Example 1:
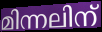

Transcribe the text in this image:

മിന്നലിന്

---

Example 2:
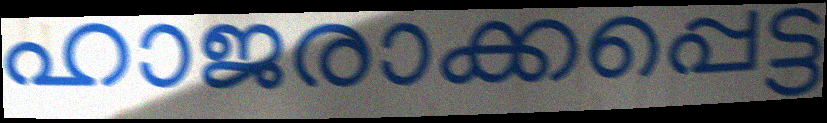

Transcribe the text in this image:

ഹാജരാക്കപ്പെട്ട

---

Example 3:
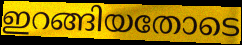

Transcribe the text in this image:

ഇറങ്ങിയതോടെ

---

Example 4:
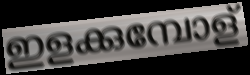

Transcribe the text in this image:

ഇളക്കുമ്പോള്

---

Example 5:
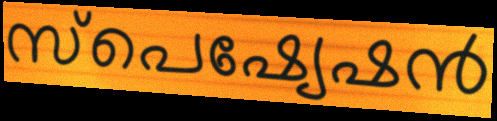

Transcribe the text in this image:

സ്പെഷ്യേഷൻ